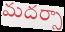
మదర్సా